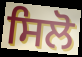
ਸਿਲੋ